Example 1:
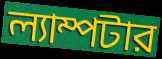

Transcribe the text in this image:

ল্যাম্পটার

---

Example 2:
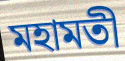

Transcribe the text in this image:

মহামতী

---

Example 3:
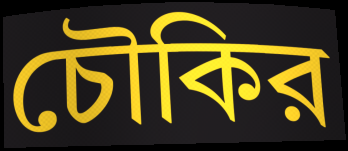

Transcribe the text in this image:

চৌকির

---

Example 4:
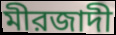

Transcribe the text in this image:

মীরজাদী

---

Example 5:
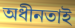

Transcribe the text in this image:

অধীনতাই